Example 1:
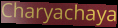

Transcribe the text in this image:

Charyachaya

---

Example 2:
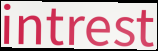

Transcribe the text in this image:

intrest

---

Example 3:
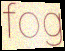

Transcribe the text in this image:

fog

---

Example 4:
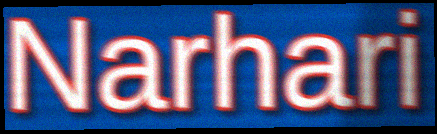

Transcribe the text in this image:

Narhari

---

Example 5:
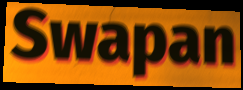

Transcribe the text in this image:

Swapan